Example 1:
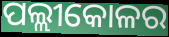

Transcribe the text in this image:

ପଲ୍ଲୀକୋଳର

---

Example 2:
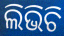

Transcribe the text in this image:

ଲିଭିଚି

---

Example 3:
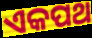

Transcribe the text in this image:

ଏକପଥ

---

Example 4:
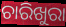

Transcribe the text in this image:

ଚାରିଖୁରା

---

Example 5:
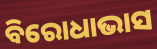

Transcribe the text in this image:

ବିରୋଧାଭାସ